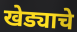
खेड्याचे